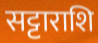
सट्टाराशि